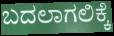
ಬದಲಾಗಲಿಕ್ಕೆ